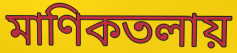
মাণিকতলায়